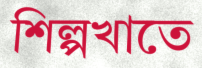
শিল্পখাতে